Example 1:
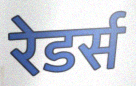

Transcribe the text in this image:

रेडर्स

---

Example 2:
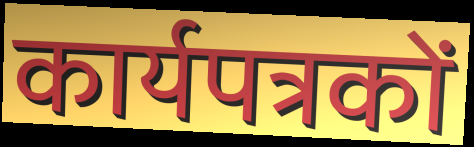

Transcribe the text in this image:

कार्यपत्रकों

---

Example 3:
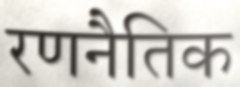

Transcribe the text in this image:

रणनैतिक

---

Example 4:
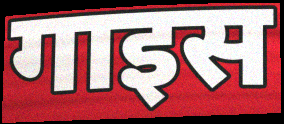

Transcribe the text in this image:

गाइस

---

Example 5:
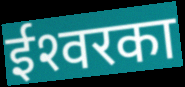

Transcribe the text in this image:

ईश्वरका